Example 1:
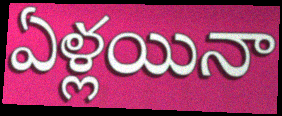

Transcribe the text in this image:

ఏళ్లయినా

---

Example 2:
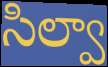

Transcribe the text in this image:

సిల్వా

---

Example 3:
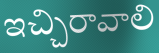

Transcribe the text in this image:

ఇచ్చిరావాలి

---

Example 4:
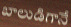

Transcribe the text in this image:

బాలుడిగానే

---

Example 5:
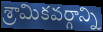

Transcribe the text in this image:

శ్రామికవర్గాన్ని